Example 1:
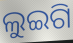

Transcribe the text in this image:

ଲୁଇଗି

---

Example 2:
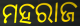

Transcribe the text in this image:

ମହରାଜ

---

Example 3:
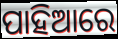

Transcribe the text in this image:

ପାହିଆରେ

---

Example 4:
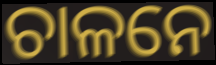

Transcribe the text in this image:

ଚାଳନେ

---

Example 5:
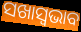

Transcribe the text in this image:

ସଖାସ୍ୱଭାବ